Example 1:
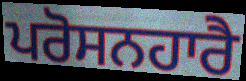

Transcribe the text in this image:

ਪਰੋਸਨਹਾਰੈ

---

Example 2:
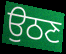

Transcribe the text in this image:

ਉਠਣ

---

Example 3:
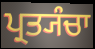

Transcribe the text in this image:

ਪ੍ਰਤ੍ਯੰਚਾ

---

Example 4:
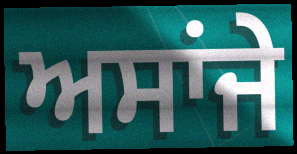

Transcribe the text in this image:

ਅਸਾਂਜੇ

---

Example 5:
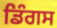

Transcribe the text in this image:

ਡਿੰਗਸ